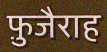
फ़ुजैराह